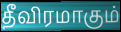
தீவிரமாகும்